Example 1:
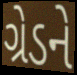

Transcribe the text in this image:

ગ્રેડને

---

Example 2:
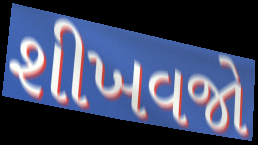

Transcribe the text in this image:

શીખવજો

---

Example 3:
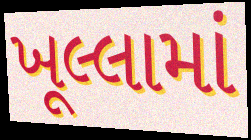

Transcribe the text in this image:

ખૂલ્લામાં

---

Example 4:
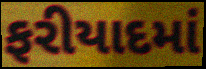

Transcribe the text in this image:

ફરીયાદમાં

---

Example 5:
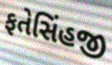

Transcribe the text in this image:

ફતેસિંહજી